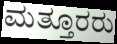
ಮತ್ತೂರರು